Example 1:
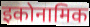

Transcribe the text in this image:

इकोनामिक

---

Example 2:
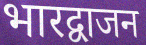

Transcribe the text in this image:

भारद्वाजन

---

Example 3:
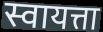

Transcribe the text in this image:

स्वायत्ता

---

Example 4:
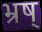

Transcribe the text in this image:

भ्रष्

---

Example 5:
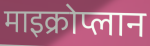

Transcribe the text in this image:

माइक्रोप्लान